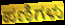
ಪಣಿಗಳು